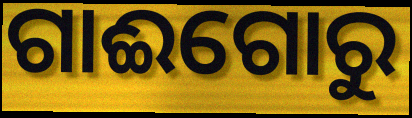
ଗାଈଗୋରୁ